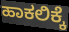
ಹಾಕಲಿಕ್ಕೆ